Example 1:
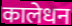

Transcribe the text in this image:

कालेधन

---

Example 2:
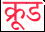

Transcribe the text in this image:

क्रूड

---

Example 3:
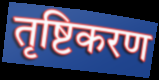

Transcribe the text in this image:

तृष्टिकरण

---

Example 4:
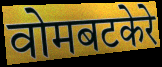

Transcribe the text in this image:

वोमबटकेरे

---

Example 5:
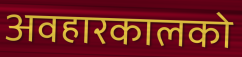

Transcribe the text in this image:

अवहारकालको